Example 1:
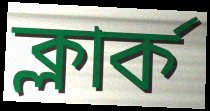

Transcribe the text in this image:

ক্লাৰ্ক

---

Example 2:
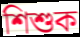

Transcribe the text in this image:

শিশুক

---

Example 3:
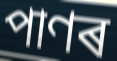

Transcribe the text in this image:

পাণৰ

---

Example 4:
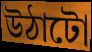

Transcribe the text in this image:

উঠাটো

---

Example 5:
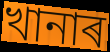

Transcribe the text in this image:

খানাৰ